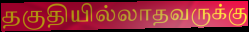
தகுதியில்லாதவருக்கு